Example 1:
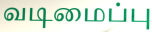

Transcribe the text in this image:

வடிமைப்பு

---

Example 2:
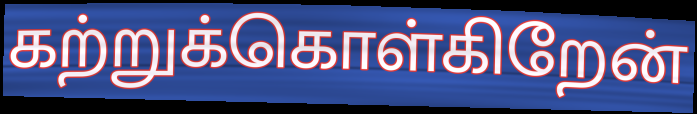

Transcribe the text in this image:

கற்றுக்கொள்கிறேன்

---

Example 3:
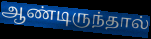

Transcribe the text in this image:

ஆண்டிருந்தால்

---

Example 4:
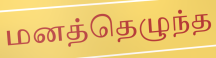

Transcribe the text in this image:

மனத்தெழுந்த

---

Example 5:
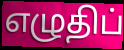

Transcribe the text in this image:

எழுதிப்